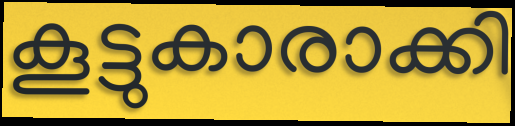
കൂട്ടുകാരാക്കി